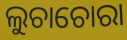
ଲୁଚାଚୋରା